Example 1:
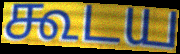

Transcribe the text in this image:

கூடய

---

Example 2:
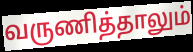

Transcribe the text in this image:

வருணித்தாலும்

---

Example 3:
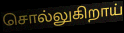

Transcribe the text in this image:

சொல்லுகிறாய்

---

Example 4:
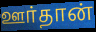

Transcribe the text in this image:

ஊர்தான்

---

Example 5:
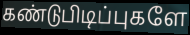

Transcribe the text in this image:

கண்டுபிடிப்புகளே